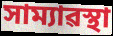
সাম্যাৱস্থা